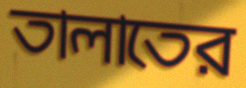
তালাতের